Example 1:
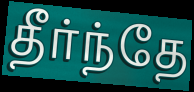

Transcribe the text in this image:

தீர்ந்தே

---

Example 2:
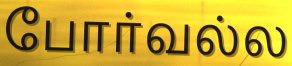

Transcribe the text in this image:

போர்வல்ல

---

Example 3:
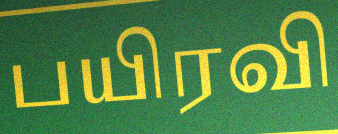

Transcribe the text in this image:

பயிரவி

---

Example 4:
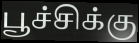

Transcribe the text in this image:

பூச்சிக்கு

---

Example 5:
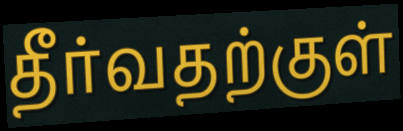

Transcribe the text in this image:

தீர்வதற்குள்